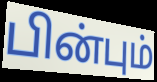
பின்பும்